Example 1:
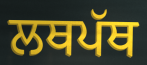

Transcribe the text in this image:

ਲਥਪੱਥ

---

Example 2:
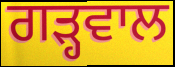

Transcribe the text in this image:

ਗੜ੍ਹਵਾਲ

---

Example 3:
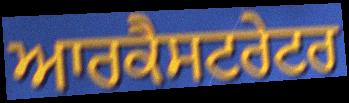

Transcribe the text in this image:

ਆਰਕੈਸਟਰੇਟਰ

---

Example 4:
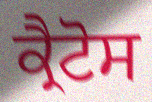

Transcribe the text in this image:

ਕ੍ਰੈਟੋਸ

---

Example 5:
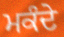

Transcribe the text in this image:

ਮਕੰਦੇ